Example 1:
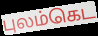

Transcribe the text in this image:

புலம்கெட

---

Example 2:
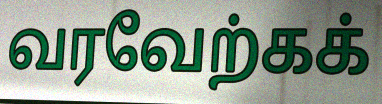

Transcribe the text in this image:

வரவேற்கக்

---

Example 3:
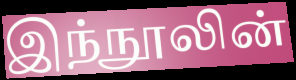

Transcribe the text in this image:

இந்நூலின்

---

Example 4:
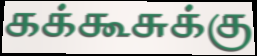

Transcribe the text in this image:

கக்கூசுக்கு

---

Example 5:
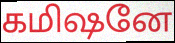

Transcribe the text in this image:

கமிஷனே